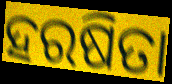
ହରଷିତା